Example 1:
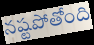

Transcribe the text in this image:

నష్టపోతోంది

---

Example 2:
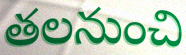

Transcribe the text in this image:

తలనుంచి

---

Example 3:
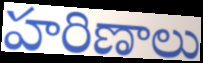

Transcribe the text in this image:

హరిణాలు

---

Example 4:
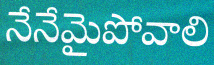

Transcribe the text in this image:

నేనేమైపోవాలి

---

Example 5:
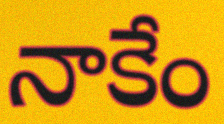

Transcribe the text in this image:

నాకేం